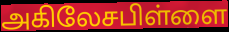
அகிலேசபிள்ளை